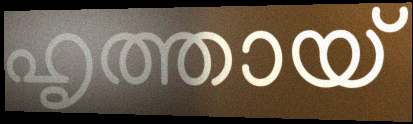
ഹൃത്തായ്